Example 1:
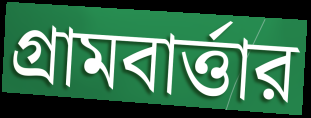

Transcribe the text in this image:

গ্রামবার্ত্তার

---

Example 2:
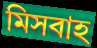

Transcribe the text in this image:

মিসবাহ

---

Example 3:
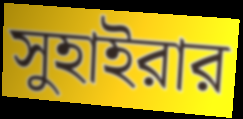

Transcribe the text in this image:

সুহাইরার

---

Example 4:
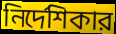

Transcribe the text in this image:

নির্দেশিকার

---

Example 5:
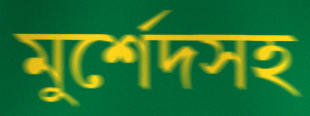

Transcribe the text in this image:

মুর্শেদসহ